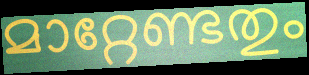
മാറ്റേണ്ടതും